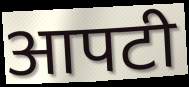
आपटी